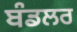
ਬੰਡਲਰ